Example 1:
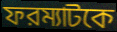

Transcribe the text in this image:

ফরম্যাটকে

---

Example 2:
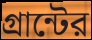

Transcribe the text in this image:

গ্রান্টের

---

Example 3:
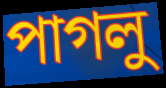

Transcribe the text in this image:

পাগলু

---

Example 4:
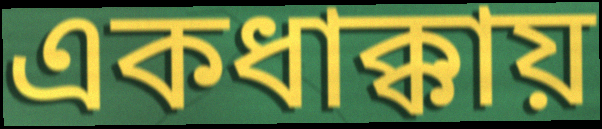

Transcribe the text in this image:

একধাক্কায়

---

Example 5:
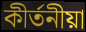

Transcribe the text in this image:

কীর্তনীয়া